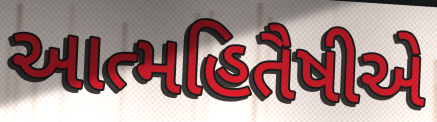
આત્મહિતૈષીએ